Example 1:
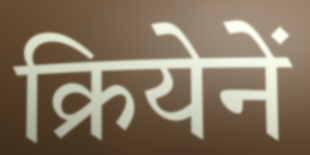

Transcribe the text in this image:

क्रियेनें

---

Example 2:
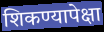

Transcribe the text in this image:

शिकण्यापेक्षा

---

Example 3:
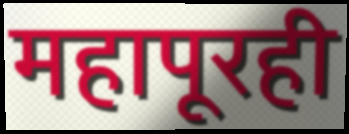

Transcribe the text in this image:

महापूरही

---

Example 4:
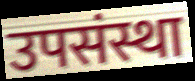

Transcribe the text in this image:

उपसंस्था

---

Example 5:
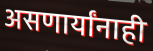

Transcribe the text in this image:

असणार्यांनाही